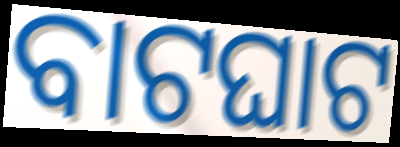
ବାଟଘାଟ